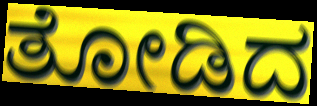
ತೋಡಿದ